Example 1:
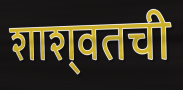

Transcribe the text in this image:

शाश्वतची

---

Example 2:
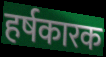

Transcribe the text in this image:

हर्षकारक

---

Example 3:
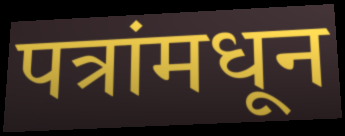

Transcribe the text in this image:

पत्रांमधून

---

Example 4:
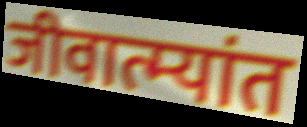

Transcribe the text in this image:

जीवात्म्यांत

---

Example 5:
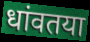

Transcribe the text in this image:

धांवतया